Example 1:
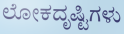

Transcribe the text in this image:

ಲೋಕದೃಷ್ಟಿಗಳು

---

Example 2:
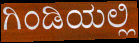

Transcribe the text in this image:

ಗಿಂಡಿಯಲ್ಲಿ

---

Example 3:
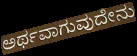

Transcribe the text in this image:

ಅರ್ಥವಾಗುವುದೇನು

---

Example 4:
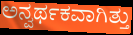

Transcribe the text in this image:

ಅನ್ವರ್ಥಕವಾಗಿತ್ತು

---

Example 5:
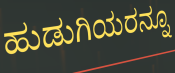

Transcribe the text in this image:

ಹುಡುಗಿಯರನ್ನೂ